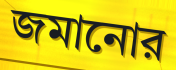
জমানোর